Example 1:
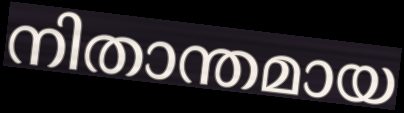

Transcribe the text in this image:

നിതാന്തമായ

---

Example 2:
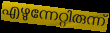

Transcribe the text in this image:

എഴുന്നേറ്റിരുന്ന്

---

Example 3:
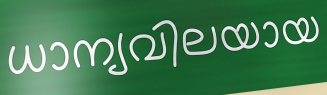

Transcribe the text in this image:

ധാന്യവിലയായ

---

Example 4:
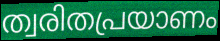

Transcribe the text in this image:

ത്വരിതപ്രയാണം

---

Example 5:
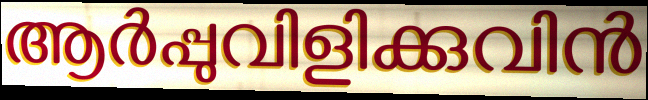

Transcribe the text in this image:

ആർപ്പുവിളിക്കുവിൻ